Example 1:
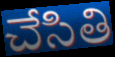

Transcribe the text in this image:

చేసితి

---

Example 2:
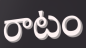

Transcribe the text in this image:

రాటం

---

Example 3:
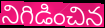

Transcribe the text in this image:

నిగిడించిన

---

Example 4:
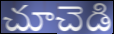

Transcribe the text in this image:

చూచెడి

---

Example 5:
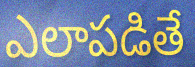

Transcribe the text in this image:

ఎలాపడితే